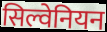
सिल्वेनियन